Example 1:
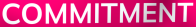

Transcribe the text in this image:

COMMITMENT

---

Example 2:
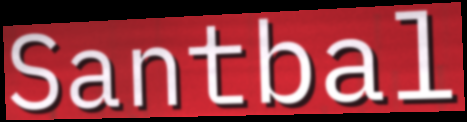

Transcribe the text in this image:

Santbal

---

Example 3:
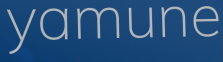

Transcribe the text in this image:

yamune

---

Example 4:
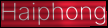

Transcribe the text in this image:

Haiphong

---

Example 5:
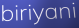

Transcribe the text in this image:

biriyani